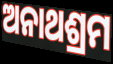
ଅନାଥଶ୍ରମ